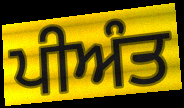
ਪੀਅੰਤ